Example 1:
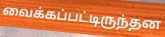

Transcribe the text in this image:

வைக்கப்பட்டிருந்தன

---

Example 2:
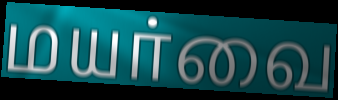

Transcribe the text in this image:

மயர்வை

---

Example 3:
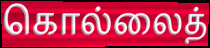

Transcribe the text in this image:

கொல்லைத்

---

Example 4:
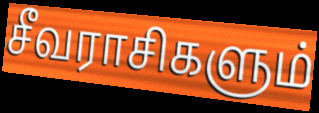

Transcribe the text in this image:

சீவராசிகளும்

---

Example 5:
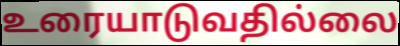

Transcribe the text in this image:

உரையாடுவதில்லை